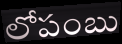
లోపంబు